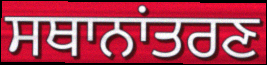
ਸਥਾਨਾਂਤਰਣ